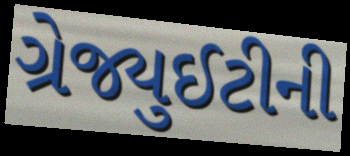
ગ્રેજ્યુઈટીની